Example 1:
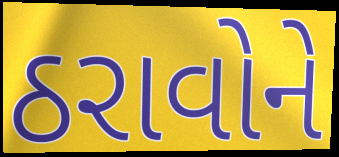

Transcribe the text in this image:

ઠરાવોને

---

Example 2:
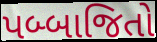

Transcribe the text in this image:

પબ્બાજિતો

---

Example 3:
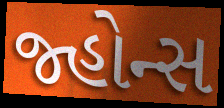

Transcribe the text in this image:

જ્હોન્સ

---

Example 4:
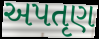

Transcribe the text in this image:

અપતૃણ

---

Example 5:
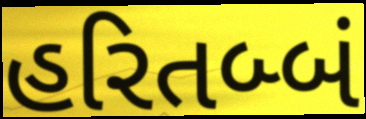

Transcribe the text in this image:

હરિતબ્બં